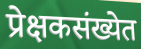
प्रेक्षकसंख्येत